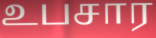
உபசார